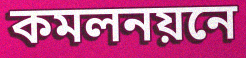
কমলনয়নে